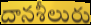
దానశీలురు